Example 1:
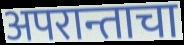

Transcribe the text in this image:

अपरान्ताचा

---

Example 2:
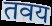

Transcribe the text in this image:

तवय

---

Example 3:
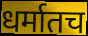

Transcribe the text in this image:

धर्मातच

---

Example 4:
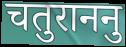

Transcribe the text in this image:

चतुराननु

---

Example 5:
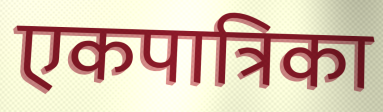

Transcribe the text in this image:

एकपात्रिका